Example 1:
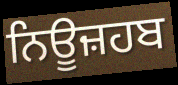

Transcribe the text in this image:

ਨਿਊਜ਼ਹਬ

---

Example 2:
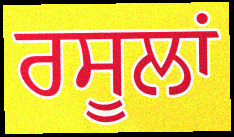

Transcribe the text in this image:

ਰਸੂਲਾਂ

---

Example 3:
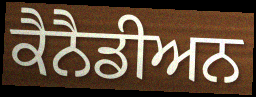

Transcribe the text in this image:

ਕੈਨੈਡੀਅਨ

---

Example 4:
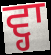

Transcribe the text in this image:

ਵ੍ਹਾ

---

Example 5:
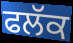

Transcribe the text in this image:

ਫਲੱਕ